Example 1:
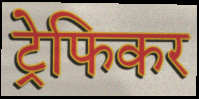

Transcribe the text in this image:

ट्रेफिकर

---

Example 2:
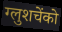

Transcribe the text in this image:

ग्लुशचेंको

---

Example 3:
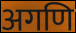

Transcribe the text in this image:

अगणि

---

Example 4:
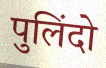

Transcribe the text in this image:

पुलिंदो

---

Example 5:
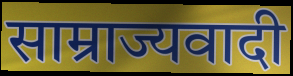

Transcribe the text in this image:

साम्राज्‍यवादी